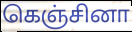
கெஞ்சினா